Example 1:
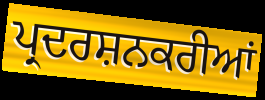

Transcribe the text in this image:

ਪ੍ਰਦਰਸ਼ਨਕਰੀਆਂ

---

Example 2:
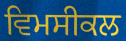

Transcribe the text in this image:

ਵਿਮਸੀਕਲ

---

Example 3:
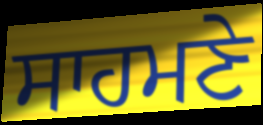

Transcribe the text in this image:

ਸਾਹਮਣੇ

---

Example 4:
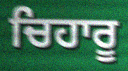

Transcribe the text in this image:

ਚਿਹਾਰੂ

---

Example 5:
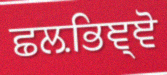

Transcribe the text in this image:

ਛਲ਼ਭਿਞ੍ਞੋ